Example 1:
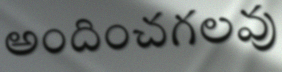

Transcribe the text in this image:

అందించగలవు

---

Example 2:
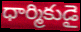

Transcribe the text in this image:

ధార్మికుడై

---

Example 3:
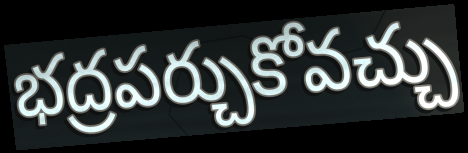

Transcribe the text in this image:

భద్రపర్చుకోవచ్చు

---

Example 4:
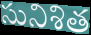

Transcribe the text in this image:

సునిశిత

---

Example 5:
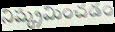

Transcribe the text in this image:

నిష్క్రమించడం